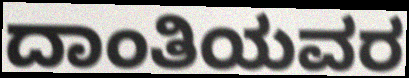
ದಾಂತಿಯವರ